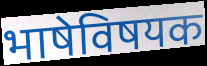
भाषेविषयक